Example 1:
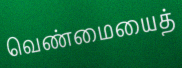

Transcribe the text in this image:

வெண்மையைத்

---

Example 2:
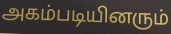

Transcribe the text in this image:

அகம்படியினரும்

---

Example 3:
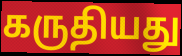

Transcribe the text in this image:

கருதியது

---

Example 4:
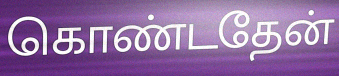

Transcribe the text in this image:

கொண்டதேன்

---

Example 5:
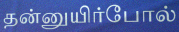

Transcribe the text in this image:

தன்னுயிர்போல்